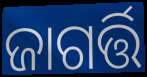
ଜାଗର୍ତ୍ତି